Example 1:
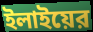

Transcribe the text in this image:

ইলাইয়ের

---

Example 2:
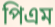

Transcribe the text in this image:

পিএম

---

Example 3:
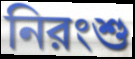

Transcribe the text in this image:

নিরংশু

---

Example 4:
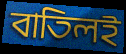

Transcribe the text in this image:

বাতিলই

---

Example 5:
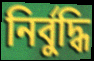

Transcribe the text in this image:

নির্বুদ্ধি